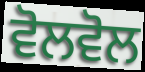
ਵੋਲਵੋਲ